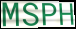
MSPH